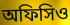
অফিসিও